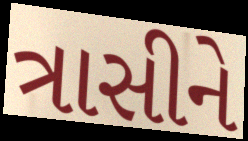
ત્રાસીને